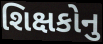
શિક્ષકોનુ